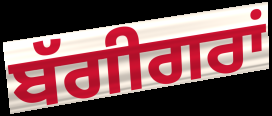
ਬੱਗੀਗਰਾਂ